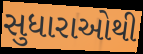
સુધારાઓથી